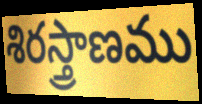
శిరస్త్రాణము